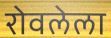
रोवलेला